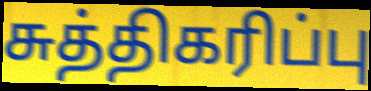
சுத்திகரிப்பு